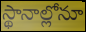
స్థానాల్లోనూ